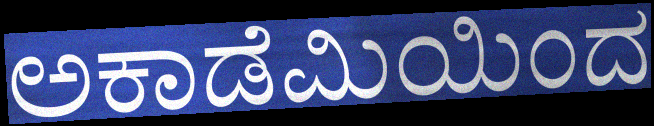
ಅಕಾಡೆಮಿಯಿಂದ